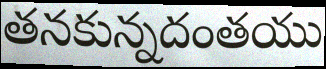
తనకున్నదంతయు